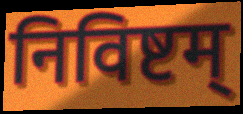
निविष्टम्